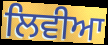
ਲਿਵੀਆ